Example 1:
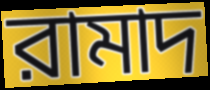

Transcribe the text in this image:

রামাদ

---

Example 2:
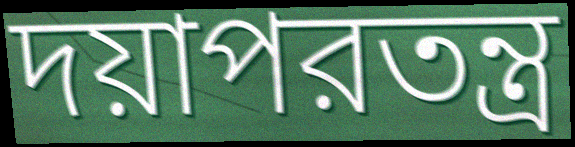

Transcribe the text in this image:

দয়াপরতন্ত্র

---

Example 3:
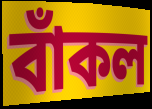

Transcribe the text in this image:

বাঁকল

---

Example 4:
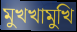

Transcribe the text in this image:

মুখখামুখি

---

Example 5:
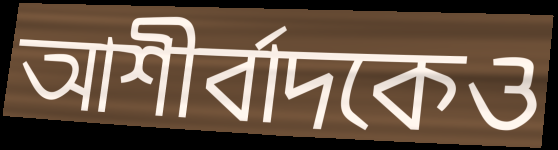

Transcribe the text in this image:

আশীর্বাদকেও